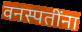
वनस्‍पतींना